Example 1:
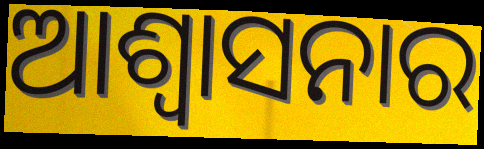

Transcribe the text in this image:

ଆଶ୍ୱାସନାର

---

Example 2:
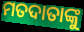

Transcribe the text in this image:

ମତଦାତାଙ୍କୁ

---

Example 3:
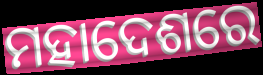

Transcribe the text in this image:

ମହାଦେଶରେ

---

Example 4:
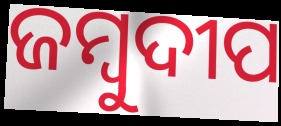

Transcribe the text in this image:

ଜମ୍ବୁଦୀପ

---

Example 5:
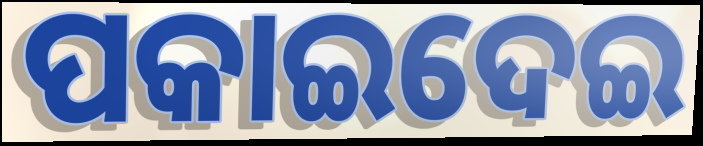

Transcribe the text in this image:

ପକାଇଦେଇ